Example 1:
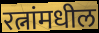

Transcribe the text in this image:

रत्नांमधील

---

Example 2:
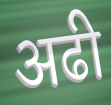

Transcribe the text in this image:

अढी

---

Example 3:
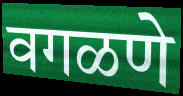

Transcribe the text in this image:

वगळणे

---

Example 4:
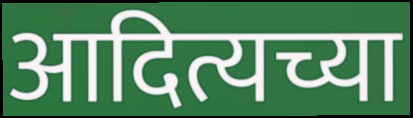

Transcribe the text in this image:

आदित्यच्या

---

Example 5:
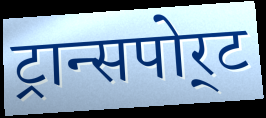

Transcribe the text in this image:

ट्रान्सपोर्ट